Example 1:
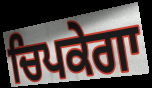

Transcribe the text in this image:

ਚਿਪਕੇਗਾ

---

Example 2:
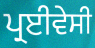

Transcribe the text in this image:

ਪ੍ਰਈਵੇਸੀ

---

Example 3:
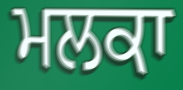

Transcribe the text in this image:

ਮਲਕਾ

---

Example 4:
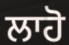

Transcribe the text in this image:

ਲਾਹੋ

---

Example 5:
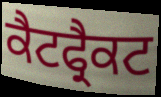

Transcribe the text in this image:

ਕੈਟਫ੍ਰੈਕਟ